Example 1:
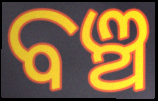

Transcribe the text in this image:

ବଞ୍ଚ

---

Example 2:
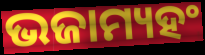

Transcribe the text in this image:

ଭଜାମ୍ୟହଂ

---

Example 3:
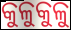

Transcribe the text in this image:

କୁଳୁକୁଳୁ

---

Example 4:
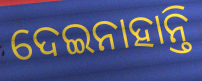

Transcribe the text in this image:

ଦେଇନାହାନ୍ତି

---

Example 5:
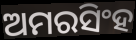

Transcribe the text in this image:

ଅମରସିଂହ